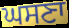
ਘਸਣਾ